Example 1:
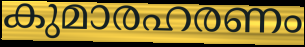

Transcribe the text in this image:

കുമാരഹരണം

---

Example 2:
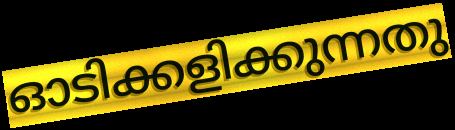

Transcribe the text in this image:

ഓടിക്കളിക്കുന്നതു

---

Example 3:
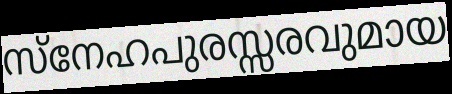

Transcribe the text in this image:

സ്നേഹപുരസ്സരവുമായ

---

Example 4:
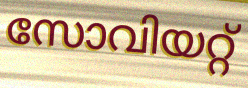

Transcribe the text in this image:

സോവിയറ്റ്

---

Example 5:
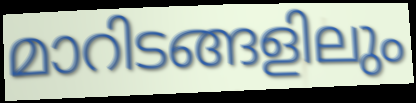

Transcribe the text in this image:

മാറിടങ്ങളിലും